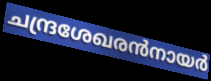
ചന്ദ്രശേഖരൻനായർ